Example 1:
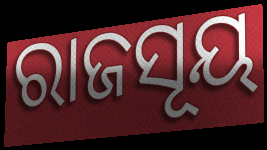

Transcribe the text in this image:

ରାଜସୂୟ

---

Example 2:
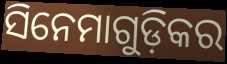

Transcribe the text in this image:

ସିନେମାଗୁଡ଼ିକର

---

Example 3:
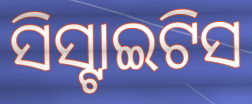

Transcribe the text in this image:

ସିସ୍ଟାଇଟିସ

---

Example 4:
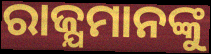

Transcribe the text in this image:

ରାଜ୍ଯମାନଙ୍କୁ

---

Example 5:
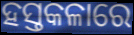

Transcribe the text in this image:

ହସ୍ତକଳାରେ